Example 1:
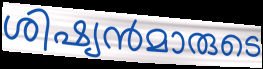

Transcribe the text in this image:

ശിഷ്യൻമാരുടെ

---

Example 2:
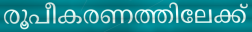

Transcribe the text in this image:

രൂപീകരണത്തിലേക്ക്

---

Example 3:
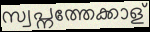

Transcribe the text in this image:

സ്വപ്നത്തേക്കാള്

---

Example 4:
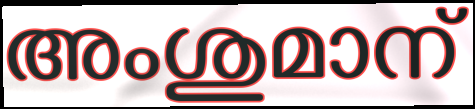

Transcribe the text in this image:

അംശുമാന്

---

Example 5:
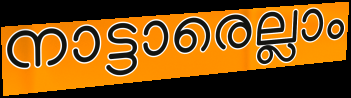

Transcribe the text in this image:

നാട്ടാരെല്ലാം